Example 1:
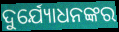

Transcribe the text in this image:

ଦୁର୍ଯ୍ୟୋଧନଙ୍କର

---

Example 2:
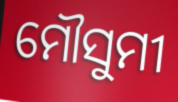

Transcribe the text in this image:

ମୌସୁମୀ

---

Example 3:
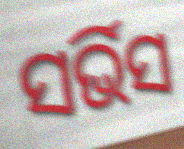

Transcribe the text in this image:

ସର୍ଭିସ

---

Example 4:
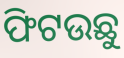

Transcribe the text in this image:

ଫିଟଉଛୁ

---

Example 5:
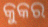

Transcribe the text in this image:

କୁକର